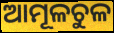
ଆମୂଳଚୁଳ